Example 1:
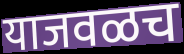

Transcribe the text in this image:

याजवळच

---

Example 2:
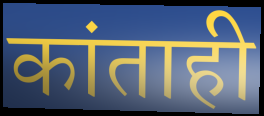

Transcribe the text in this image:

कांताही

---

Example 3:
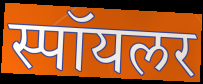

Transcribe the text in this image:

स्पॉयलर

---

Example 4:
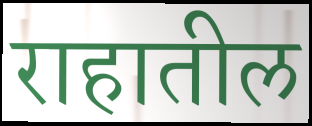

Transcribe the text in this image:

राहातील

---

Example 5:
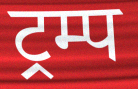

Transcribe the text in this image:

ट्रम्प